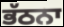
ਭੱਠਨਾ